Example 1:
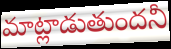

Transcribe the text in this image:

మాట్లాడుతుందనీ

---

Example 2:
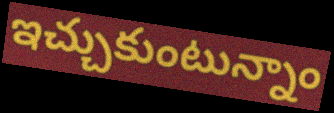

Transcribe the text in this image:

ఇచ్చుకుంటున్నాం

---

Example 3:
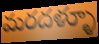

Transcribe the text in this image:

మరదళ్ళూ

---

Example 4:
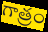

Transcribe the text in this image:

గాత్రం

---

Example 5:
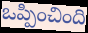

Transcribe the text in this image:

ఒప్పించింది